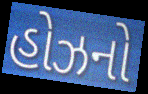
હોઝનો